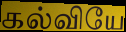
கல்வியே